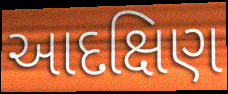
આદક્ષિણ